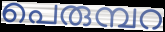
പെരുമ്പറ